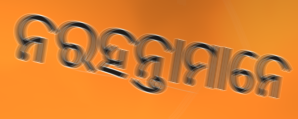
ନରହନ୍ତାମାନେ